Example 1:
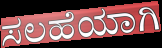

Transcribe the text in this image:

ಸಲಹೆಯಾಗಿ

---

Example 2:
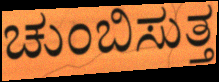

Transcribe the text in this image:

ಚುಂಬಿಸುತ್ತ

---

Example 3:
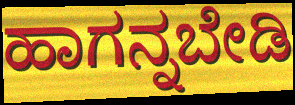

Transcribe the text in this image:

ಹಾಗನ್ನಬೇಡಿ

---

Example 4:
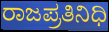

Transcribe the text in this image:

ರಾಜಪ್ರತಿನಿಧಿ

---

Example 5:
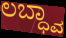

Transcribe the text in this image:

ಲಬ್ಧ್ವಾ